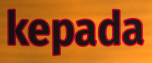
kepada